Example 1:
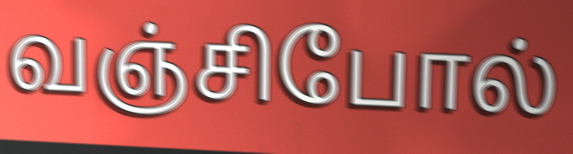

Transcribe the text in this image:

வஞ்சிபோல்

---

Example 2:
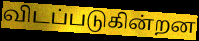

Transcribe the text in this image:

விடப்படுகின்றன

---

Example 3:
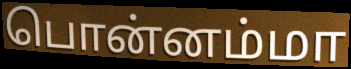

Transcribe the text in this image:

பொன்னம்மா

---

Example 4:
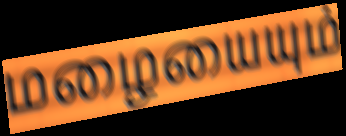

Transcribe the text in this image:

மழையையும்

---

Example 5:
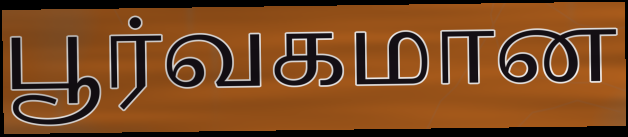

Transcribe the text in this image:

பூர்வகமான